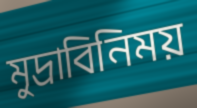
মুদ্রাবিনিময়